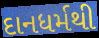
દાનધર્મથી